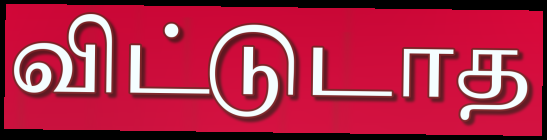
விட்டுடாத